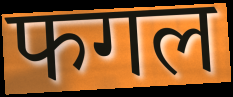
फगल